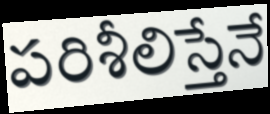
పరిశీలిస్తేనే